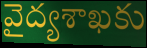
వైద్యశాఖకు